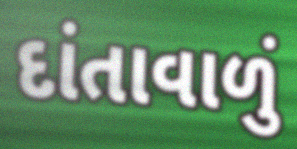
દાંતાવાળું